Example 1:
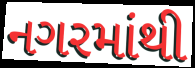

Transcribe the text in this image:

નગરમાંથી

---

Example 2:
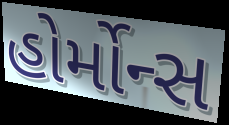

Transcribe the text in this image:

હોર્મોન્સ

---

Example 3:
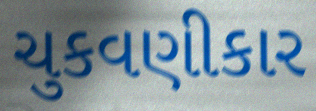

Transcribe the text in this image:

ચુકવણીકાર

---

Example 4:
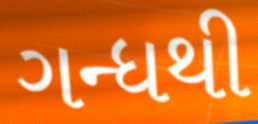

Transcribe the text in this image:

ગન્ધથી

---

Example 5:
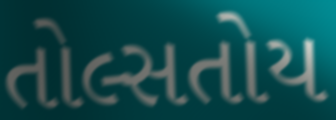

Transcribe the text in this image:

તોલ્સતોય